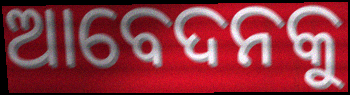
ଆବେଦନକୁ